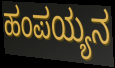
ಹಂಪಯ್ಯನ